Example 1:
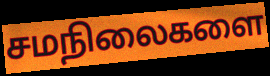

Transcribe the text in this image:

சமநிலைகளை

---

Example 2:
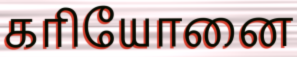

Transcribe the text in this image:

கரியோனை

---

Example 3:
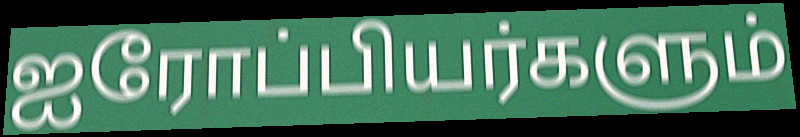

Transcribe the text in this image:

ஐரோப்பியர்களும்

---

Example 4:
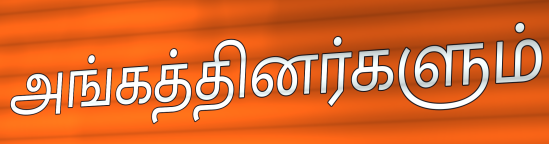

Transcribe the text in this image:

அங்கத்தினர்களும்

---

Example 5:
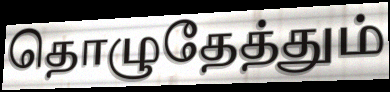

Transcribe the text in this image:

தொழுதேத்தும்